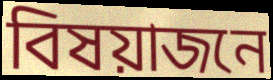
বিষয়াজনে